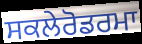
ਸਕਲੇਰੋਡਰਮਾ